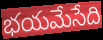
భయమేసేది